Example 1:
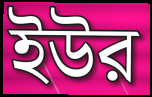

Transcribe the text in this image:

ইউর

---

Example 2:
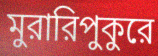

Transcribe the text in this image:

মুরারিপুকুরে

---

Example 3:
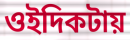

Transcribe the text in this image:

ওইদিকটায়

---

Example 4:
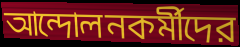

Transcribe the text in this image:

আন্দোলনকর্মীদের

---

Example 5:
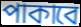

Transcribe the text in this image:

পাকাবে